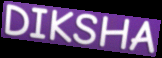
DIKSHA